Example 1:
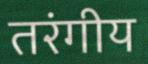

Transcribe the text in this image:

तरंगीय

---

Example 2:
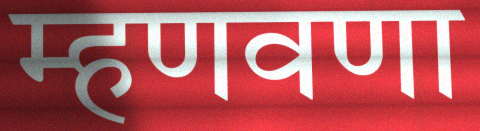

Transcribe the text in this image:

म्हणवणा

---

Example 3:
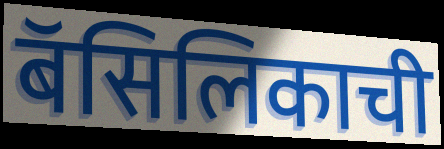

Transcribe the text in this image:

बॅसिलिकाची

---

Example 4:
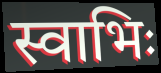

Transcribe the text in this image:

स्वाभिः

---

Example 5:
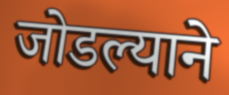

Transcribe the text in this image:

जोडल्याने